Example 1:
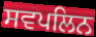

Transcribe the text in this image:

ਸਵਪਲਿਨ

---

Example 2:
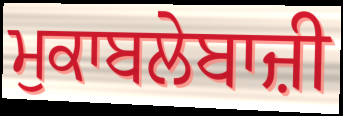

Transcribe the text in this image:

ਮੁਕਾਬਲੇਬਾਜ਼ੀ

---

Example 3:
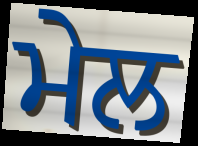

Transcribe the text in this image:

ਮੇਲ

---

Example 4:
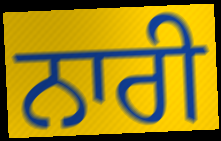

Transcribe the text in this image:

ਨਾਰੀ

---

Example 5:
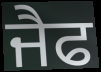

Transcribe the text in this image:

ਜੈਫ